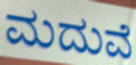
ಮದುವೆ